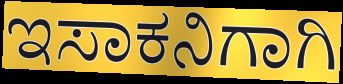
ಇಸಾಕನಿಗಾಗಿ